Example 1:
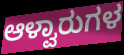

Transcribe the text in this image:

ಆಳ್ವಾರುಗಳ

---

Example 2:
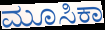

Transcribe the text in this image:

ಮೂಸಿಕಾ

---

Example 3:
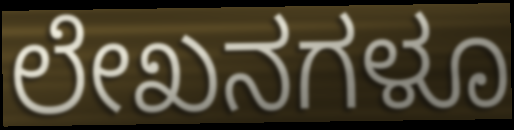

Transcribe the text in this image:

ಲೇಖನಗಳೂ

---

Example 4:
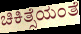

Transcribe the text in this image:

ಚಿಕಿತ್ಸೆಯಂತೆ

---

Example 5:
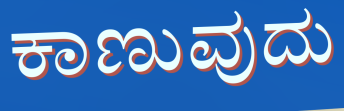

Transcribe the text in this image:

ಕಾಣುವುದು